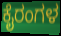
ಕೈರಂಗಳ